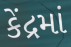
કેંદ્રમાં